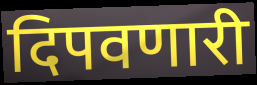
दिपवणारी